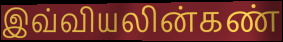
இவ்வியலின்கண்